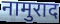
नामुराद